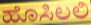
ಹೊಸಿಲಲಿ